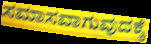
ಸಮಾಸವಾಗುವುದಕ್ಕೆ